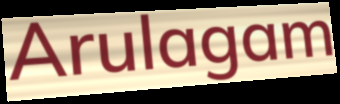
Arulagam